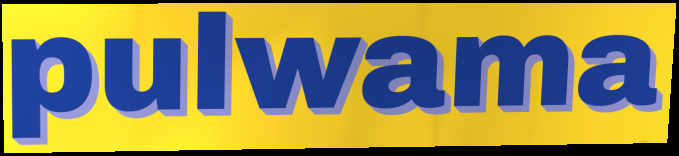
pulwama